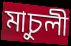
মাচুলী